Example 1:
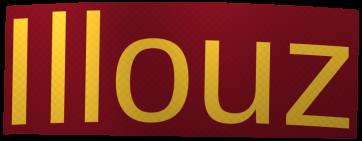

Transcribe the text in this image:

Illouz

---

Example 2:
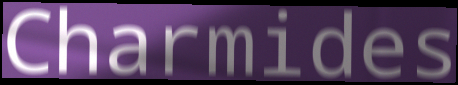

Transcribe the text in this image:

Charmides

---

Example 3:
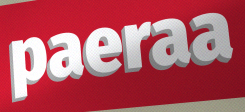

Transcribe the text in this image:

paeraa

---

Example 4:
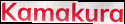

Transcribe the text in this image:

Kamakura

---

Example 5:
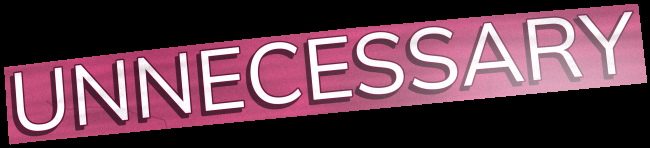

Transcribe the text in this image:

UNNECESSARY